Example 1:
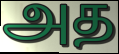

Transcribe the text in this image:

அத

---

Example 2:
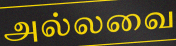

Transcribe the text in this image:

அல்லவை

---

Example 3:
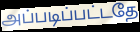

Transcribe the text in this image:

அப்படிப்பட்டதே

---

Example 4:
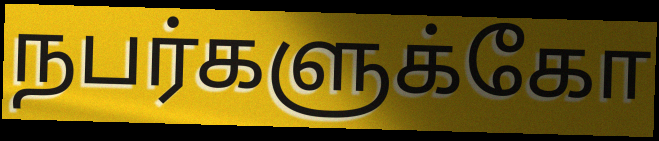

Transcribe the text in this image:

நபர்களுக்கோ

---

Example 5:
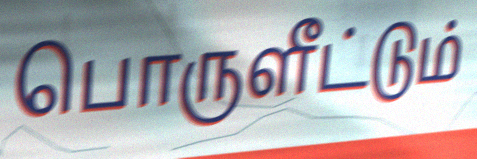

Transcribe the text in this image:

பொருளீட்டும்